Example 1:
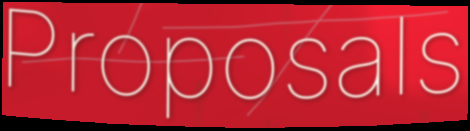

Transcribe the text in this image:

Proposals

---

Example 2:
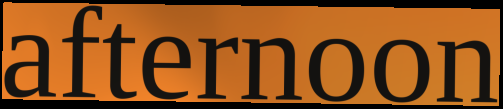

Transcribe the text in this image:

afternoon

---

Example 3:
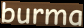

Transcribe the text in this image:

burma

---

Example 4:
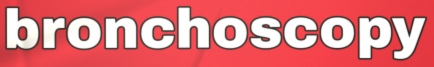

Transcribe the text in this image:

bronchoscopy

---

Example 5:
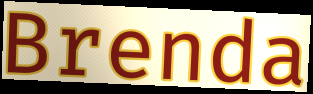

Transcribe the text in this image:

Brenda